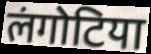
लंगोटिया